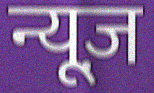
न्यूज़